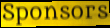
Sponsors